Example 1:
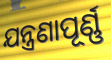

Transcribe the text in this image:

ଯନ୍ତ୍ରଣାପୂର୍ଣ୍ଣ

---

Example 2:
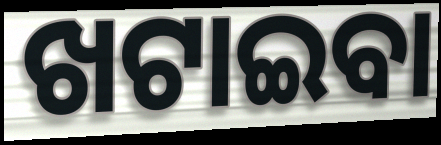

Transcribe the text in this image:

ଖଟାଇବା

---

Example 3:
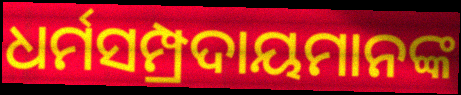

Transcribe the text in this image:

ଧର୍ମସମ୍ପ୍ରଦାୟମାନଙ୍କ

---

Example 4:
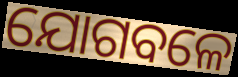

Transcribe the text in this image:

ଯୋଗବଳେ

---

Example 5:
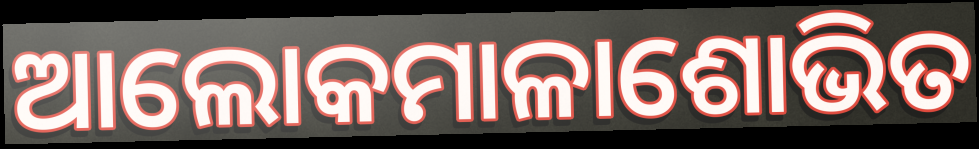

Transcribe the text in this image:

ଆଲୋକମାଳାଶୋଭିତ